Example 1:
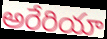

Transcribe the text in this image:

అరేరియా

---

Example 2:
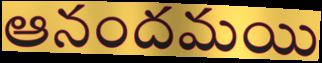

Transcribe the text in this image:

ఆనందమయి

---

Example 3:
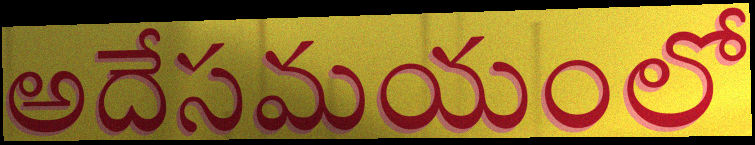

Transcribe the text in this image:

అదేసమయంలో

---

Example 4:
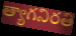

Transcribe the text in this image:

త్యాగనిరతి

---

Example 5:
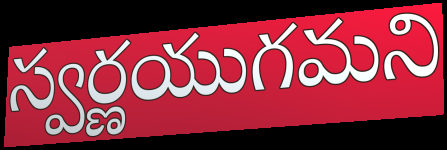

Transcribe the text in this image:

స్వర్ణయుగమని